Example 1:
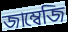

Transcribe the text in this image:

জাম্বেজি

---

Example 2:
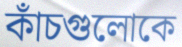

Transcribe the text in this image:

কাঁচগুলোকে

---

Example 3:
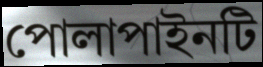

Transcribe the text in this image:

পোলাপাইনটি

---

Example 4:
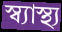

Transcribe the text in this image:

স্ব্যাস্থ্য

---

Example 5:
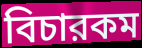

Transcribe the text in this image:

বিচারকম